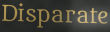
Disparate